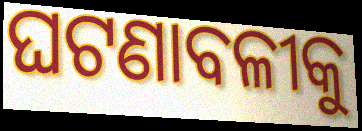
ଘଟଣାବଳୀକୁ